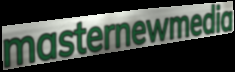
masternewmedia